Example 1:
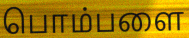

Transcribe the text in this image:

பொம்பளை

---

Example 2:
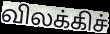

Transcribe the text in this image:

விலக்கிச்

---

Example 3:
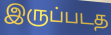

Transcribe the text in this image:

இருப்படத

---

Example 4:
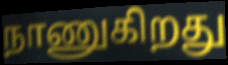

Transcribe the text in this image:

நாணுகிறது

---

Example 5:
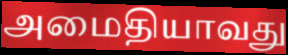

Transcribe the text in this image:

அமைதியாவது